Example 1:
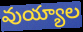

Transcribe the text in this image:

వుయ్యాల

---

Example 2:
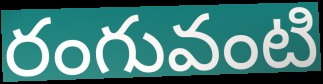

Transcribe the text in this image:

రంగువంటి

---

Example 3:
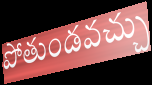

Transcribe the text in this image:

పోతుండవచ్చు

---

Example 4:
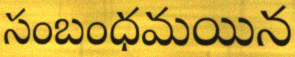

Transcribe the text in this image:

సంబంధమయిన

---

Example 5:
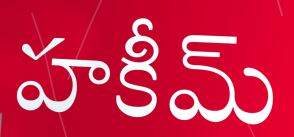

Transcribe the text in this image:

హకీమ్